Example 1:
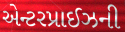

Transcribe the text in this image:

એન્ટરપ્રાઈઝની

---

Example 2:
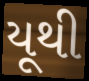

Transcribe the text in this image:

યૂથી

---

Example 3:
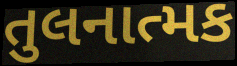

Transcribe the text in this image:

તુલનાત્મક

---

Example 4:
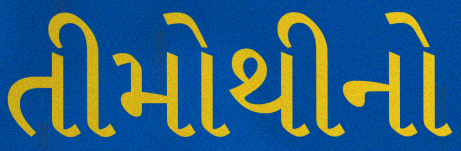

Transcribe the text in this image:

તીમોથીનો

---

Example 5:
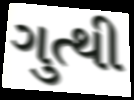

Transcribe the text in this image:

ગુત્થી